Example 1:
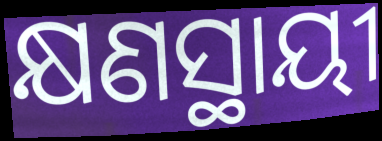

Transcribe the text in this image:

କ୍ଷଣସ୍ଥାୟୀ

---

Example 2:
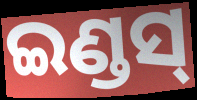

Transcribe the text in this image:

ଇଣ୍ଡସ୍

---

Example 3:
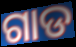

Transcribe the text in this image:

ଗାଡ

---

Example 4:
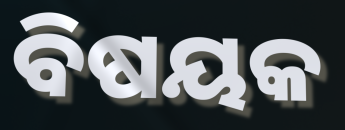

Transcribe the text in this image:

ବିଷୟକ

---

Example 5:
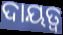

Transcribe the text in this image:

ଦାୟତ୍ବ